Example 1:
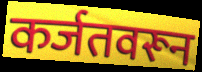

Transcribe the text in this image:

कर्जतवरून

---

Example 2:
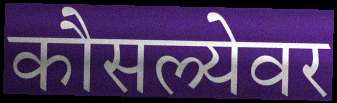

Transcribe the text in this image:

कौसल्येवर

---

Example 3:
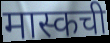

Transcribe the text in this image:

मास्कची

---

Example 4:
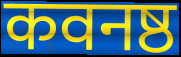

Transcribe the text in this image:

कवनष्ठ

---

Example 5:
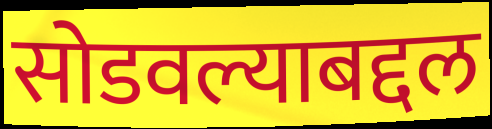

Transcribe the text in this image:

सोडवल्याबद्दल